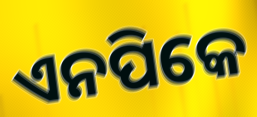
ଏନପିକେ